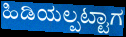
ಹಿಡಿಯಲ್ಪಟ್ಟಾಗ